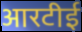
आरटीई